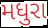
મધુરા